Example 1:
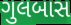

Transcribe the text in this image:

ગુલબાસ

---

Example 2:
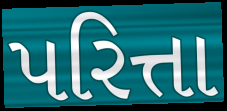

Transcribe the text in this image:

પરિત્તા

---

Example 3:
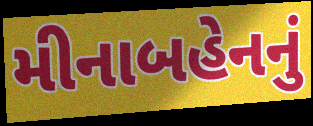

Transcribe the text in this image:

મીનાબહેનનું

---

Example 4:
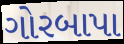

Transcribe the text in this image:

ગોરબાપા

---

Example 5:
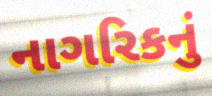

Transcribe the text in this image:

નાગરિકનું